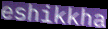
eshikkha